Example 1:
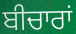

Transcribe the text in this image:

ਬੀਚਾਰਾਂ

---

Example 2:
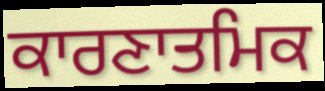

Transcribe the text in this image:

ਕਾਰਣਾਤਮਿਕ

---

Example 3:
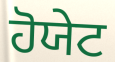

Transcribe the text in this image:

ਹੋਯੇਟ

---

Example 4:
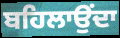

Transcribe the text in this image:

ਬਹਿਲਾਉਂਦਾ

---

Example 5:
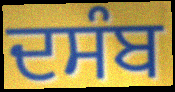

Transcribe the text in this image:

ਦਸੰਬ